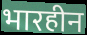
भारहीन